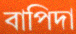
বাপিদা